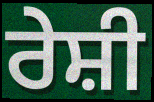
ਰੇਸ਼ੀ